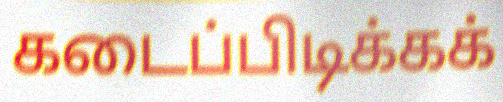
கடைப்பிடிக்கக்